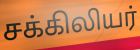
சக்கிலியர்